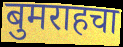
बुमराहचा